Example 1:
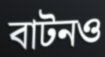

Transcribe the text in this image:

বাটনও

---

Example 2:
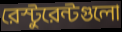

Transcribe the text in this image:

রেস্টুরেন্টগুলো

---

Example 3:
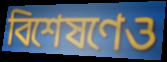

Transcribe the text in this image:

বিশেষণেও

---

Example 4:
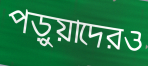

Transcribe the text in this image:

পড়ুয়াদেরও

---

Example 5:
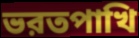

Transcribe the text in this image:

ভরতপাখি